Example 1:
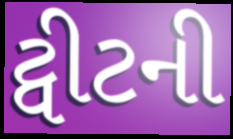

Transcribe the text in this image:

ટ્વીટની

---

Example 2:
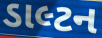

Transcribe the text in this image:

ડાલ્ટન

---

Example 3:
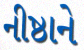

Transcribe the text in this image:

નીષ્ઠાને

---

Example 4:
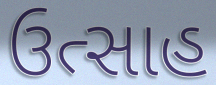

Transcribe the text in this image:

ઉત્સાહ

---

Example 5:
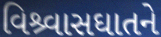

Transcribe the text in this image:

વિશ્ર્વાસઘાતને